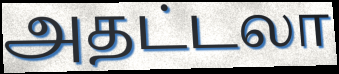
அதட்டலா